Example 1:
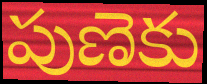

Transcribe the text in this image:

పుణెకు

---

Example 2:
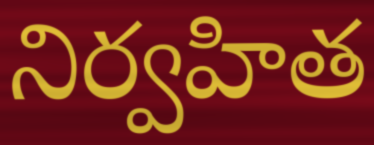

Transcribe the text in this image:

నిర్వహిత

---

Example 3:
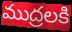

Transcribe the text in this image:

ముద్రలకి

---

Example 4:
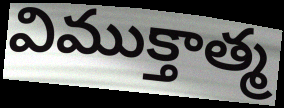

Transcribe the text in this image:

విముక్తాత్మ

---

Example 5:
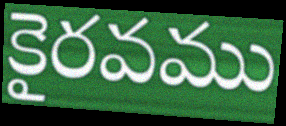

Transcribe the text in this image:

కైరవము